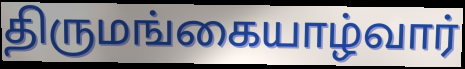
திருமங்கையாழ்வார்